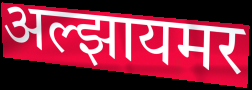
अल्झायमर